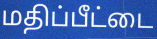
மதிப்பீட்டை